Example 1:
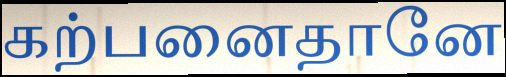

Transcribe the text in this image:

கற்பனைதானே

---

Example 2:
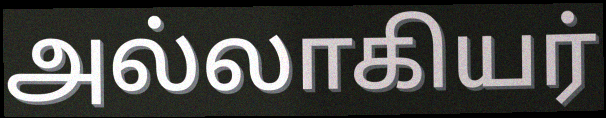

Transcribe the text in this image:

அல்லாகியர்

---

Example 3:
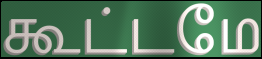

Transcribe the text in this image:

கூட்டமே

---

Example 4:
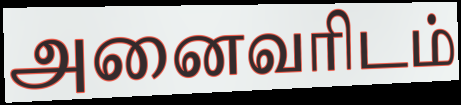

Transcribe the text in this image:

அனைவரிடம்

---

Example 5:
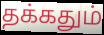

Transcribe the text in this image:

தக்கதும்